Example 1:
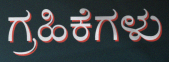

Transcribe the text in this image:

ಗ್ರಹಿಕೆಗಳು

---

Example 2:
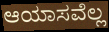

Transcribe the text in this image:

ಆಯಾಸವೆಲ್ಲ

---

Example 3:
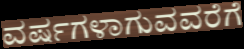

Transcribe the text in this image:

ವರ್ಷಗಳಾಗುವವರೆಗೆ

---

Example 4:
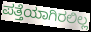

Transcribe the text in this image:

ಪತ್ತೆಯಾಗಿರಲಿಲ್ಲ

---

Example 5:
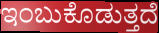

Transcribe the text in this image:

ಇಂಬುಕೊಡುತ್ತದೆ